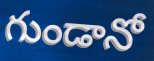
గుండానో